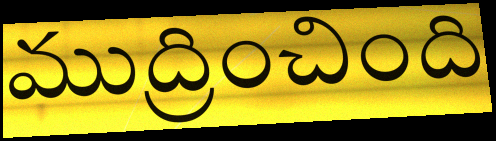
ముద్రించింది